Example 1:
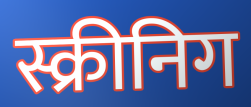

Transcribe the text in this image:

स्क्रीनिग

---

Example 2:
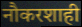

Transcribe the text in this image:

नौकरशाही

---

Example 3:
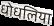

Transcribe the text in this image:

धोधलिया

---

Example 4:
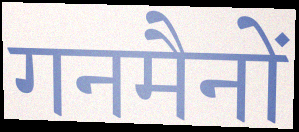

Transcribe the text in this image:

गनमैनों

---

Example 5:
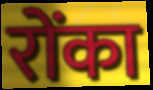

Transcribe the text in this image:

रोंका